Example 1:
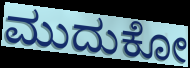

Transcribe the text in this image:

ಮುದುಕೋ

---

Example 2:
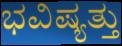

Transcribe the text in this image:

ಭವಿಷ್ಯತ್ತು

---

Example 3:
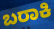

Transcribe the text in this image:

ಬರಾಕಿ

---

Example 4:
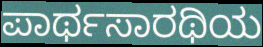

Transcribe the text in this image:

ಪಾರ್ಥಸಾರಥಿಯ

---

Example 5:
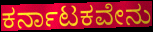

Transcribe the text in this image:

ಕರ್ನಾಟಕವೇನು